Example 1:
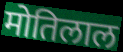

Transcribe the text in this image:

मोतिलाल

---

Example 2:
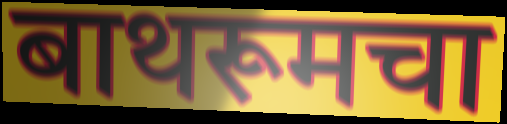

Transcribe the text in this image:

बाथरूमचा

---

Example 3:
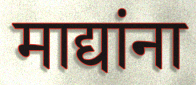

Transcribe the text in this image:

माद्यांना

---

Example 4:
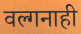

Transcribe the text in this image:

वल्गनाही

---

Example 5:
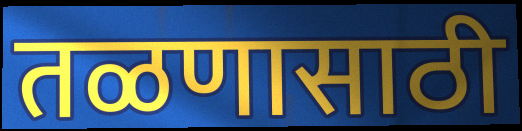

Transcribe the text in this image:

तळणासाठी